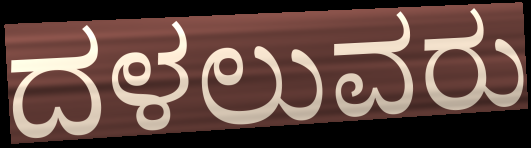
ದಳಲುವರು